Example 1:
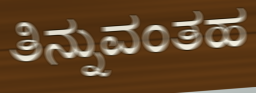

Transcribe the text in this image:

ತಿನ್ನುವಂತಹ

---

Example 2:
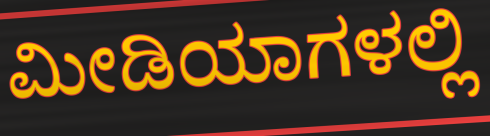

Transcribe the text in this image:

ಮೀಡಿಯಾಗಳಲ್ಲಿ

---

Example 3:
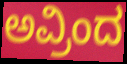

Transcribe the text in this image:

ಅವ್ರಿಂದ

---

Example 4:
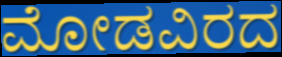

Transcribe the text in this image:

ಮೋಡವಿರದ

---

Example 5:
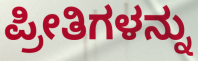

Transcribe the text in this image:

ಪ್ರೀತಿಗಳನ್ನು